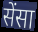
सेंसा